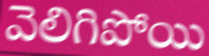
వెలిగిపోయి